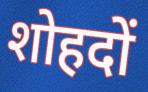
शोहदों